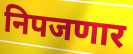
निपजणार